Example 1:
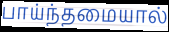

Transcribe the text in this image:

பாய்ந்தமையால்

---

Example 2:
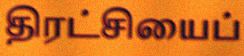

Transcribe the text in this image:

திரட்சியைப்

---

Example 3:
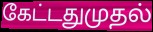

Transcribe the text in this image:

கேட்டதுமுதல்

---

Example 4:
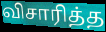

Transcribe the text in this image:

விசாரித்த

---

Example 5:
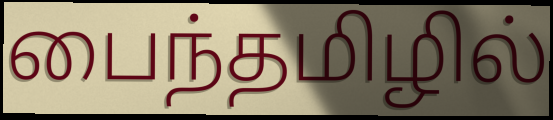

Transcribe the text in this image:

பைந்தமிழில்